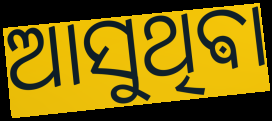
ଆସୁଥିଵା